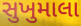
સુખુમાલા